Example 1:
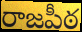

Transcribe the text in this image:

రాజపీఠ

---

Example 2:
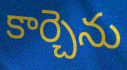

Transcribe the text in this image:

కార్చెను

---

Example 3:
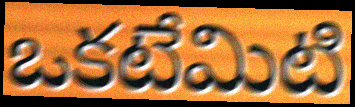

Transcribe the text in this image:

ఒకటేమిటి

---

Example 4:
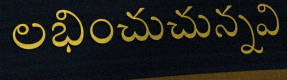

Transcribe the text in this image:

లభించుచున్నవి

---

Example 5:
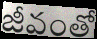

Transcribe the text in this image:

జీవంతో